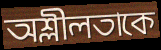
অশ্লীলতাকে